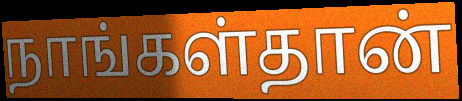
நாங்கள்தான்